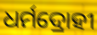
ଧର୍ମଦ୍ରୋହୀ